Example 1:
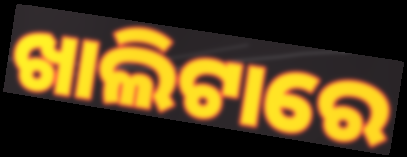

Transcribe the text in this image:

ଖାଲିଟାରେ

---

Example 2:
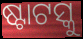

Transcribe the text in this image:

ଷ୍ଟାଟସ୍କୁ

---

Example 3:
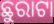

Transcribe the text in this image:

ଛୁରାଟା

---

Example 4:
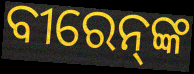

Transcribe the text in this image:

ବୀରେନ୍‍ଙ୍କ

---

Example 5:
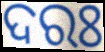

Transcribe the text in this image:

ଦରଃ